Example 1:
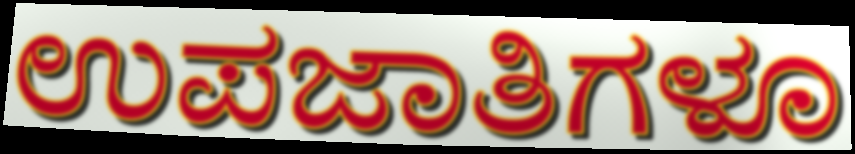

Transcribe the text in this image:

ಉಪಜಾತಿಗಳೂ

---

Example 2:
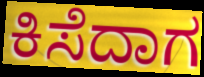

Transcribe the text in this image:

ಕಿಸೆದಾಗ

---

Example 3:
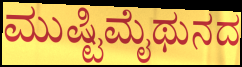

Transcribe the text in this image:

ಮುಷ್ಟಿಮೈಥುನದ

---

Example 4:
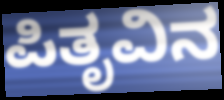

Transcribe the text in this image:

ಪಿತೃವಿನ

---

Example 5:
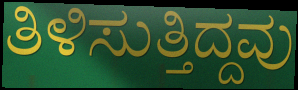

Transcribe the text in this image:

ತಿಳಿಸುತ್ತಿದ್ದವು